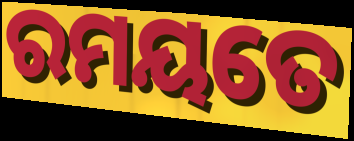
ରମୟତେ